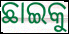
ଛାଇକୁ